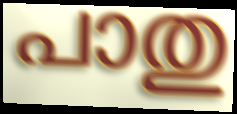
പാതു